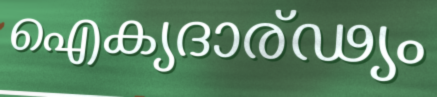
ഐക്യദാര്ഢ്യം